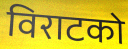
विराटको